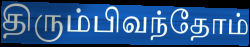
திரும்பிவந்தோம்